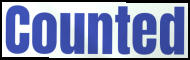
Counted